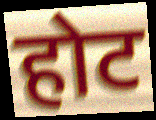
होट